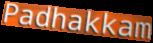
Padhakkam